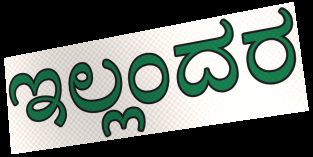
ಇಲ್ಲಂದರ